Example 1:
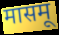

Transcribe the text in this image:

मासमू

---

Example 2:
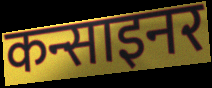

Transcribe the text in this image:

कन्साइनर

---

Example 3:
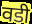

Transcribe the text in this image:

वडी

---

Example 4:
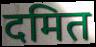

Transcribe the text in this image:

दमित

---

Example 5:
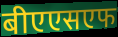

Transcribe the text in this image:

बीएएसएफ